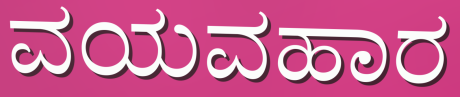
ವಯವಹಾರ